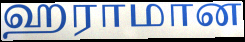
ஹராமான